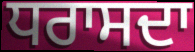
ਧਰਾਸਦਾ